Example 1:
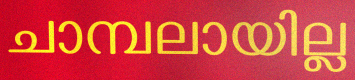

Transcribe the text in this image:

ചാമ്പലായില്ല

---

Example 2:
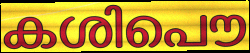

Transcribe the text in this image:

കശിപൌ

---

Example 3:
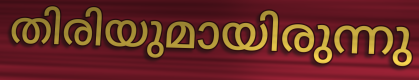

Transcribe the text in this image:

തിരിയുമായിരുന്നു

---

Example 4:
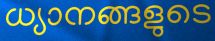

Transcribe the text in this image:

ധ്യാനങ്ങളുടെ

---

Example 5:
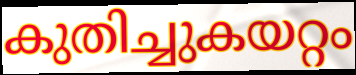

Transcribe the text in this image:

കുതിച്ചുകയറ്റം